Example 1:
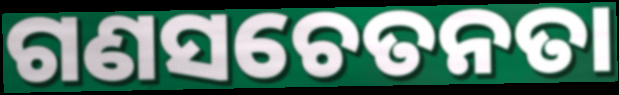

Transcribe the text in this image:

ଗଣସଚେତନତା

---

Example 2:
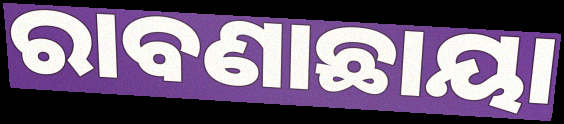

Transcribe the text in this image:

ରାବଣାଛାୟା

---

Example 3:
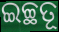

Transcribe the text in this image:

ଇଚ୍ଛତୂ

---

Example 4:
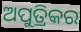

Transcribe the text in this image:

ଅପୁତ୍ରିକର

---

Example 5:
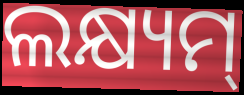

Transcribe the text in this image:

ଲକ୍ଷ୍ୟମ୍